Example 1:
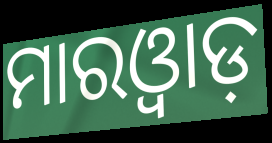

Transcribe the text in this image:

ମାରଓ୍ୱାଡ଼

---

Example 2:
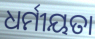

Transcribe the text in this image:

ଧର୍ମୀୟତା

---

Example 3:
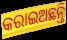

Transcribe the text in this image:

କରାଇଅଛନ୍ତି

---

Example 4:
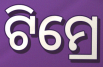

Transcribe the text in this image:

ଟିମ୍ରେ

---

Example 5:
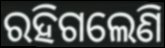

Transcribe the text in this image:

ରହିଗଲେଣି